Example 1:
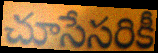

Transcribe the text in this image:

చూసేసరికీ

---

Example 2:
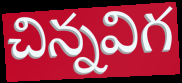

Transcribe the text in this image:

చిన్నవిగ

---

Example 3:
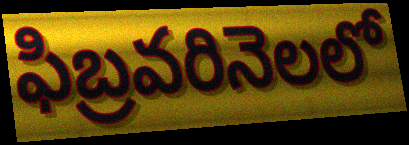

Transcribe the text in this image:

ఫిబ్రవరినెలలో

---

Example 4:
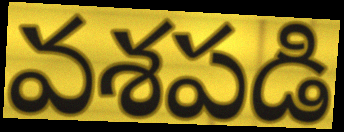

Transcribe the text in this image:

వశపడి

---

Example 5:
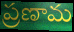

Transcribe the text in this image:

ప్రణామ